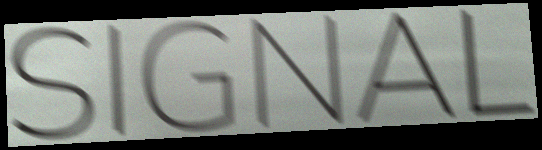
SIGNAL